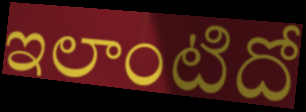
ఇలాంటిదో